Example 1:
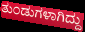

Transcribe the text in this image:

ತುಂಡುಗಳಾಗಿದ್ದು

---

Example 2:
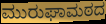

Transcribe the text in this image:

ಮುರುಘಾಮಠದ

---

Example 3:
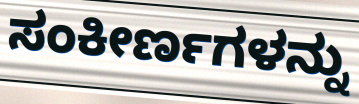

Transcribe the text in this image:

ಸಂಕೀರ್ಣಗಳನ್ನು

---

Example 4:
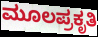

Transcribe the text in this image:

ಮೂಲಪ್ರಕೃತಿ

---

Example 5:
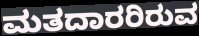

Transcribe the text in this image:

ಮತದಾರರಿರುವ